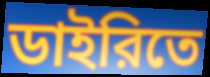
ডাইরিতে